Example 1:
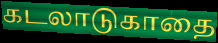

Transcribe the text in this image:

கடலாடுகாதை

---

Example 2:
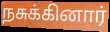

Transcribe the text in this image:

நசுக்கினார்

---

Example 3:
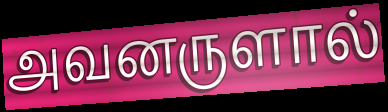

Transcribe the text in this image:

அவனருளால்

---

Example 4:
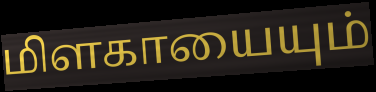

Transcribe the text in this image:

மிளகாயையும்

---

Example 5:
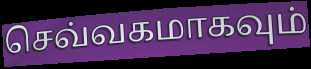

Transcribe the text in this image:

செவ்வகமாகவும்